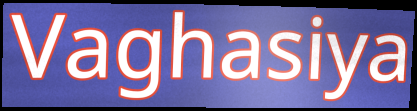
Vaghasiya